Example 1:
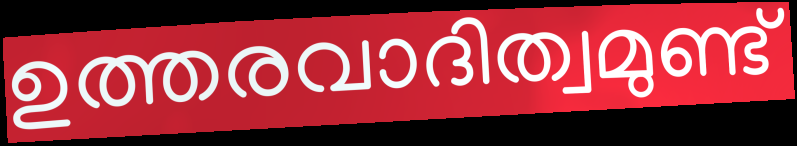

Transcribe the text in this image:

ഉത്തരവാദിത്വമുണ്ട്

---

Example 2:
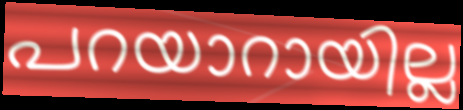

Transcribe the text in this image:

പറയാറായില്ല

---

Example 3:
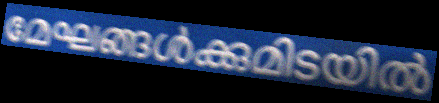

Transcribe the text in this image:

മേഘങ്ങൾക്കുമിടയിൽ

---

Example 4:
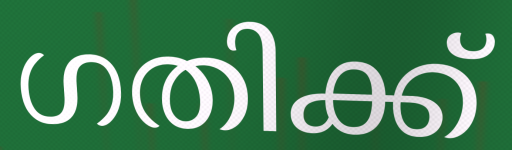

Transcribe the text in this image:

ഗതിക്ക്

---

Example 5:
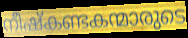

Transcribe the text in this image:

നീഷ്കണ്ടകന്മാരുടെ